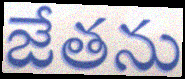
జేతను